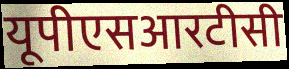
यूपीएसआरटीसी